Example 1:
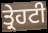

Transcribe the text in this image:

ਤ੍ਰੇਹਟੀ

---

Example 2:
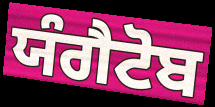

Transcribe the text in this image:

ਯੰਗੈਟੋਬ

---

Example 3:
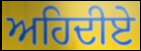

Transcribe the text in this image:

ਅਹਿਦੀਏ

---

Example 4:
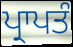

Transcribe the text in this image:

ਪ੍ਰਾਪਤੰ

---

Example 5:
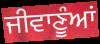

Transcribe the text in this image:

ਜੀਵਾਣੂੰਆਂ